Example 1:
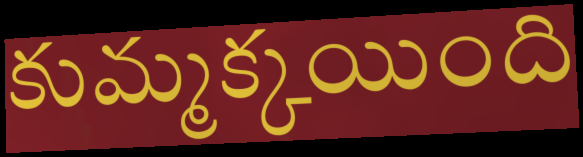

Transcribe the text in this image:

కుమ్మక్కయింది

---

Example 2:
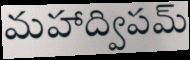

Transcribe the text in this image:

మహాద్విపమ్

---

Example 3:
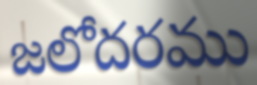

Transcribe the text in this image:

జలోదరము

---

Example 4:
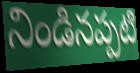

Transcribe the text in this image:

నిండినప్పటి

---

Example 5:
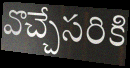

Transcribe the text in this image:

వొచ్చేసరికి